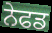
ਨੇਫਡ